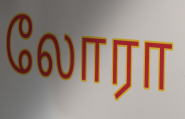
லோரா